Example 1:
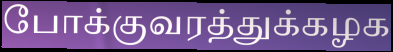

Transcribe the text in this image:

போக்குவரத்துக்கழக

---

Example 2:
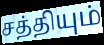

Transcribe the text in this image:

சத்தியும்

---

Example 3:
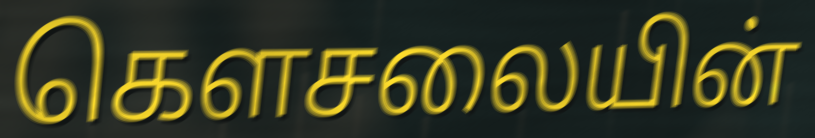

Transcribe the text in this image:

கௌசலையின்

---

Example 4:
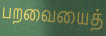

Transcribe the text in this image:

பறவையைத்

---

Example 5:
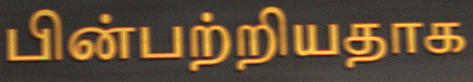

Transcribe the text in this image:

பின்பற்றியதாக